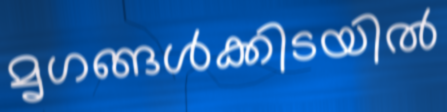
മൃഗങ്ങൾക്കിടയിൽ